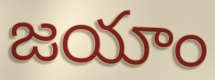
జయాం